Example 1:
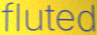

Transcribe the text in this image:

fluted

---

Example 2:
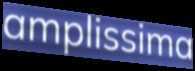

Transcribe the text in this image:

amplissima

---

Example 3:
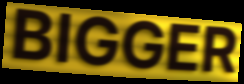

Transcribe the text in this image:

BIGGER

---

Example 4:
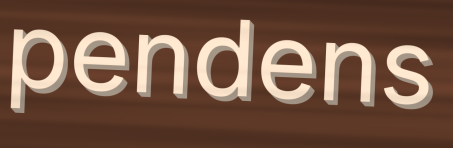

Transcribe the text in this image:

pendens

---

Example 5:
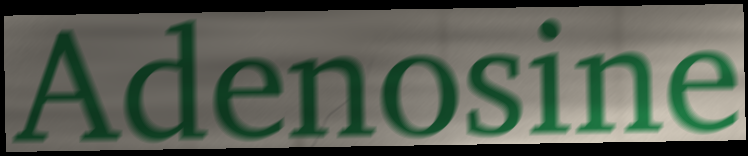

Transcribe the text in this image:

Adenosine